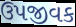
ઉપજીવક